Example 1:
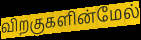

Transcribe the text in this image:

விறகுகளின்மேல்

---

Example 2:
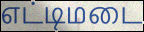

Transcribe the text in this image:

எட்டிமடை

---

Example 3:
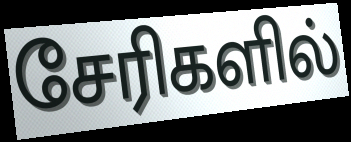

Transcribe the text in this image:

சேரிகளில்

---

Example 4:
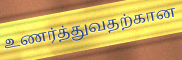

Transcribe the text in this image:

உணர்த்துவதற்கான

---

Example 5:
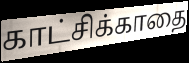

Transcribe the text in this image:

காட்சிக்காதை